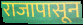
राजापासून